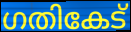
ഗതികേട്